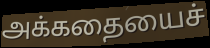
அக்கதையைச்